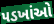
પડખાંઓ